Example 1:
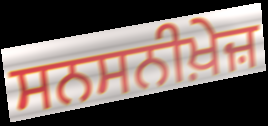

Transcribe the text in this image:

ਸਨਸਨੀਖ਼ੇਜ਼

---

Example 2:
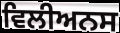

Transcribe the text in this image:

ਵਿਲੀਅਨਸ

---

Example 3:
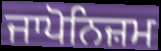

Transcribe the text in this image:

ਜਾਪੋਨਿਜ਼ਮ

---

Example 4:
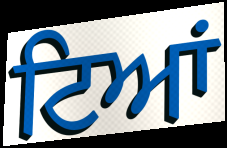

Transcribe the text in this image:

ਟਿਆਂ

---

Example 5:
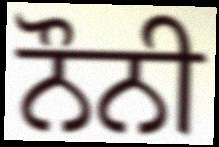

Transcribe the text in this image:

ਨੌਨੀ